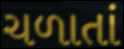
ચળાતાં